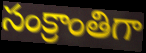
సంక్రాంతిగా